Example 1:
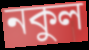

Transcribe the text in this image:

নকুল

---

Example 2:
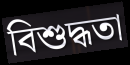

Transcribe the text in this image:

বিশুদ্ধতা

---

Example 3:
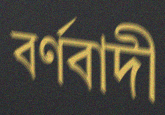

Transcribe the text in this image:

বৰ্ণবাদী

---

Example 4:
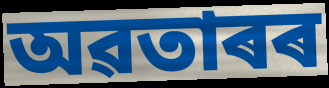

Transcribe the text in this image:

অৱতাৰৰ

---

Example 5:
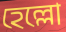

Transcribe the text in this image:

হেল্লো